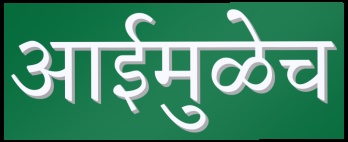
आईमुळेच